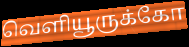
வெளியூருக்கோ